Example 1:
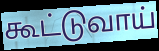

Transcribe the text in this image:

கூட்டுவாய்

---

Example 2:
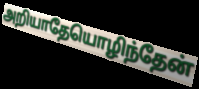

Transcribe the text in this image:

அறியாதேயொழிந்தேன்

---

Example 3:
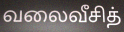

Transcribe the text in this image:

வலைவீசித்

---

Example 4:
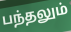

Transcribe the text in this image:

பந்தலும்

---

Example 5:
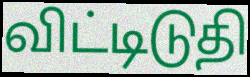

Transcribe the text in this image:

விட்டிடுதி